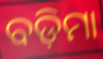
ବଡ଼ିମା